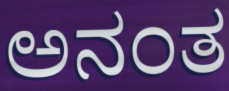
ಅನಂತ